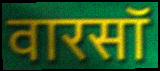
वारसॉ